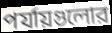
পর্যায়গুলোর